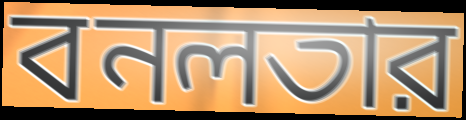
বনলতার